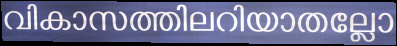
വികാസത്തിലറിയാതല്ലോ